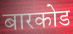
बारकोड